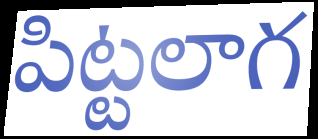
పిట్టలాగ